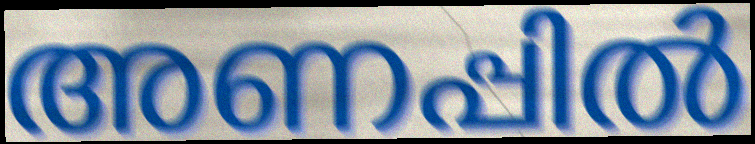
അണപ്പിൽ